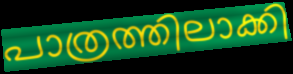
പാത്രത്തിലാക്കി